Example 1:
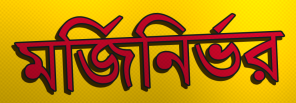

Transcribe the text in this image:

মর্জিনির্ভর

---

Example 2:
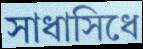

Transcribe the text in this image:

সাধাসিধে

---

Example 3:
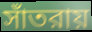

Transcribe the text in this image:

সাঁতরায়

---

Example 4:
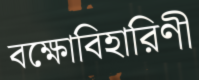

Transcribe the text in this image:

বক্ষোবিহারিণী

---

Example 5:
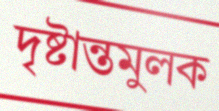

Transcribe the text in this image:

দৃষ্টান্তমুলক